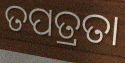
ତପତ୍ରତା